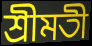
শ্ৰীমতী